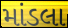
માંડલા